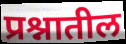
प्रश्नातील